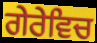
ਗੇਰੇਵਿਚ